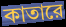
কাতারে